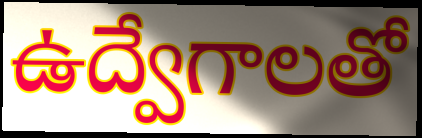
ఉద్వేగాలతో